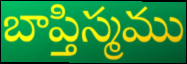
బాప్తిస్మము